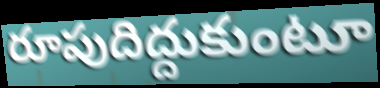
రూపుదిద్దుకుంటూ